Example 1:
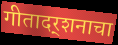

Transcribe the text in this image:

गीतादर्शनाचा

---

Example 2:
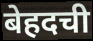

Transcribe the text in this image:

बेहदची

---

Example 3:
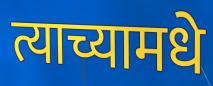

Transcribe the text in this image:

त्याच्यामधे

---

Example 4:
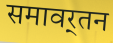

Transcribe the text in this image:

समावर्तन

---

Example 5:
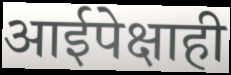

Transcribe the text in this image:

आईपेक्षाही